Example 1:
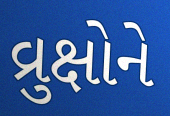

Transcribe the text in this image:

વ્રુક્ષોને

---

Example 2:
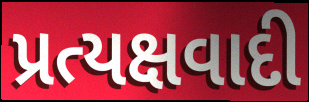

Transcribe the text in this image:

પ્રત્યક્ષવાદી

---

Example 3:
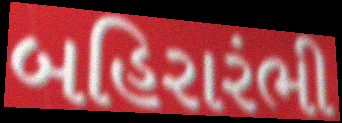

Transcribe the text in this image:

બહિરારંભી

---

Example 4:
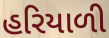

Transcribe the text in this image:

હરિયાળી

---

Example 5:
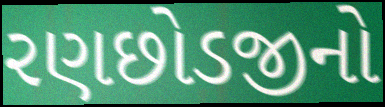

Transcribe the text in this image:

રણછોડજીનો